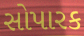
સોપારક